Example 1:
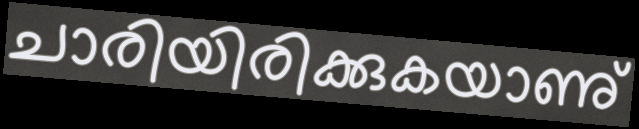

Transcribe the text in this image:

ചാരിയിരിക്കുകയാണു്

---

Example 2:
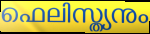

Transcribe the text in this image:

ഫെലിസ്ത്യനും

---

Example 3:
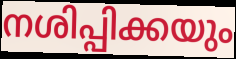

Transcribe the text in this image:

നശിപ്പിക്കയും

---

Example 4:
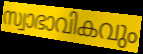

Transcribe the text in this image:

സ്വാഭാവികവും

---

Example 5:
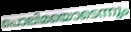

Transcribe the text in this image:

പൊലിമയൊടെന്നും